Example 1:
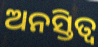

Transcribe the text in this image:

ଅନସ୍ତିତ୍ୱ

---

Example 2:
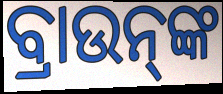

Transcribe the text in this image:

ବ୍ରାଉନ୍‌ଙ୍କ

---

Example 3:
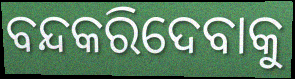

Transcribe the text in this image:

ବନ୍ଦକରିଦେବାକୁ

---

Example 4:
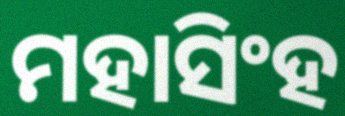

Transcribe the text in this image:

ମହାସିଂହ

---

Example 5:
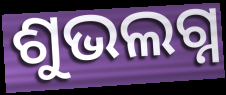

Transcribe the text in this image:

ଶୁଭଲଗ୍ନ